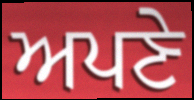
ਅਪਣੇ